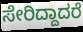
ಸೇರಿದ್ದಾದರೆ